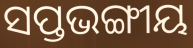
ସପ୍ତଭଙ୍ଗୀୟ